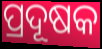
ପ୍ରଦୂଷକ